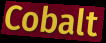
Cobalt